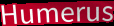
Humerus